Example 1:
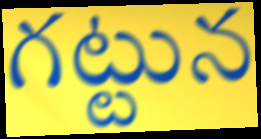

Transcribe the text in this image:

గట్టున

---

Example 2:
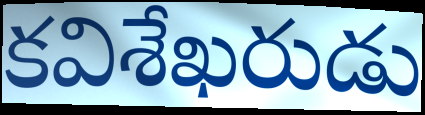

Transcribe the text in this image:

కవిశేఖరుడు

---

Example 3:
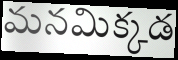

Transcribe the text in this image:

మనమిక్కడ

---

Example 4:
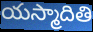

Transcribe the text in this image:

యస్మాదితి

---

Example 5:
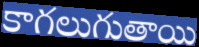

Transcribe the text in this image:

కాగలుగుతాయి